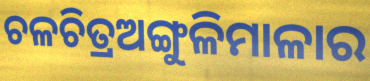
ଚଳଚିତ୍ରଅଙ୍ଗୁଳିମାଳାର